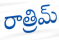
రాత్రిమ్